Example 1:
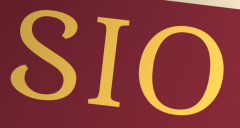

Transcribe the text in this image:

SIO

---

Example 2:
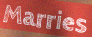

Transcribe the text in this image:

Marries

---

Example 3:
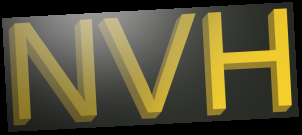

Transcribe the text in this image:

NVH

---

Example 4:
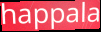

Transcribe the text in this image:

happala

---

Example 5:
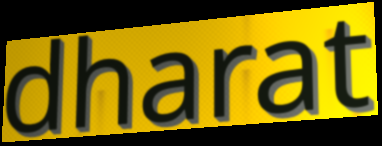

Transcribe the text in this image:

dharat